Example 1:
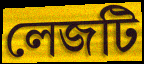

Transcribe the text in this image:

লেজটি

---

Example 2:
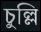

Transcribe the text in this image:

চুল্লি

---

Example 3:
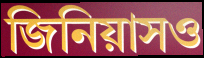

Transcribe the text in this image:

জিনিয়াসও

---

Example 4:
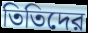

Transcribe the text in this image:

তিতিদের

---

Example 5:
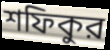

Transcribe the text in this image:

শফিকুর